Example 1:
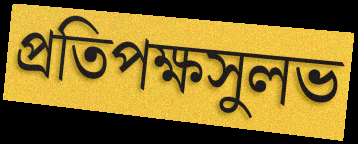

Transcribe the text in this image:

প্রতিপক্ষসুলভ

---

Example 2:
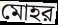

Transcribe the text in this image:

মোহর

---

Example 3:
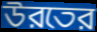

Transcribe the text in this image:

উরতের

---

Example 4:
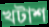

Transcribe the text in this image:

খটাশ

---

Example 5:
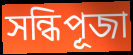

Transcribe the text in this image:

সন্ধিপূজা